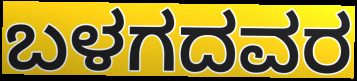
ಬಳಗದವರ